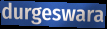
durgeswara